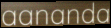
aananda